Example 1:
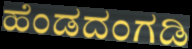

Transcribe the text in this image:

ಹೆಂಡದಂಗಡಿ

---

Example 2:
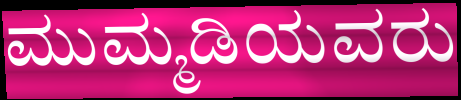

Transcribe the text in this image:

ಮುಮ್ಮಡಿಯವರು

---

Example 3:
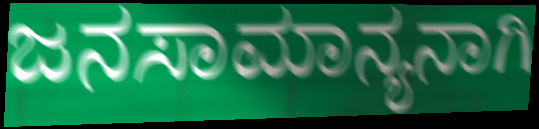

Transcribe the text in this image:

ಜನಸಾಮಾನ್ಯನಾಗಿ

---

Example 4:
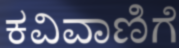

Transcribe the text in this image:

ಕವಿವಾಣಿಗೆ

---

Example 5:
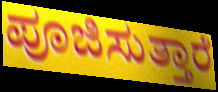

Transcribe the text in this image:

ಪೂಜಿಸುತ್ತಾರೆ